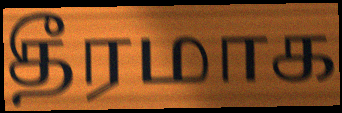
தீரமாக